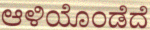
ಆಳಿಯೊಂಡೆದೆ